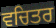
ਵਚਿਤਰ